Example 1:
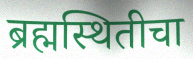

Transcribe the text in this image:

ब्रह्मस्थितीचा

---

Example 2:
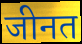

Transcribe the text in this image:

जीनत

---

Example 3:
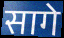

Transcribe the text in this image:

सागे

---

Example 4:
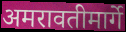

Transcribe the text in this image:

अमरावतीमार्गे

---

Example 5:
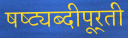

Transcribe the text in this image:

षष्ट्यब्दीपूर्ती